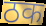
ठक